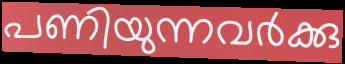
പണിയുന്നവർക്കു